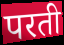
परती